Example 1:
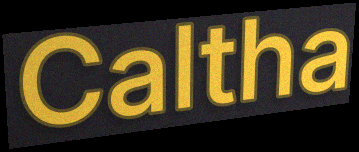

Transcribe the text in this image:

Caltha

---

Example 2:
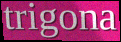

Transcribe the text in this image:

trigona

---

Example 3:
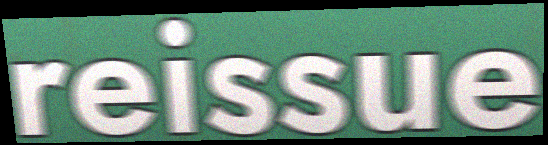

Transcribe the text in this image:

reissue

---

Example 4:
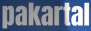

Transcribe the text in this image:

pakartal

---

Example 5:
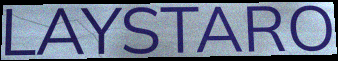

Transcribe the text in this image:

LAYSTARO